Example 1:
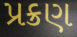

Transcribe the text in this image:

પ્રક્રણ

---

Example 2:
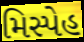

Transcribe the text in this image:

મિસ્પેહ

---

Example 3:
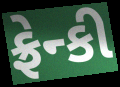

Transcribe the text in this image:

ફ્રેન્કી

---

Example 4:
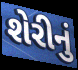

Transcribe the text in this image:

શેરીનું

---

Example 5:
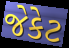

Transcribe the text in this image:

જેકેટ